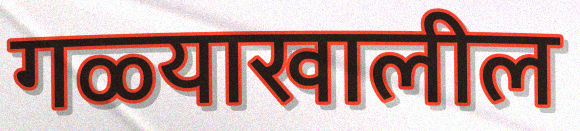
गळ्याखालील